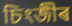
চিংজীৰ